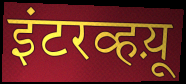
इंटरव्हय़ू